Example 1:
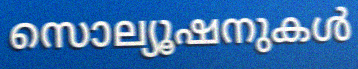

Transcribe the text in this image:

സൊല്യൂഷനുകൾ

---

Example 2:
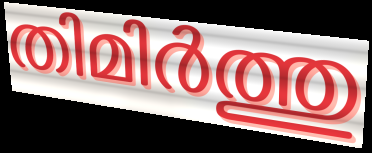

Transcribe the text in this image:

തിമിർത്തു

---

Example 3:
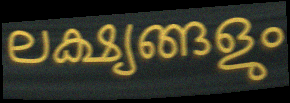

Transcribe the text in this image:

ലക്ഷ്യങ്ങളും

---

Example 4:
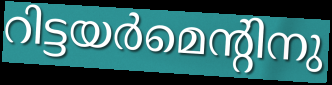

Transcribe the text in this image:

റിട്ടയർമെന്റിനു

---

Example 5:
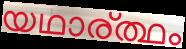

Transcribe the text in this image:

യഥാര്ത്ഥം